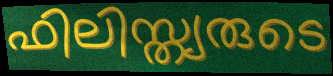
ഫിലിസ്ത്യരുടെ